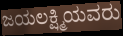
ಜಯಲಕ್ಷ್ಮಿಯವರು